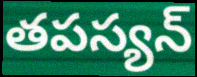
తపస్యన్